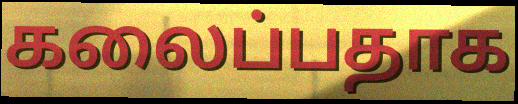
கலைப்பதாக